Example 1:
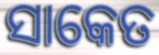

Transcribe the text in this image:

ସାକେତ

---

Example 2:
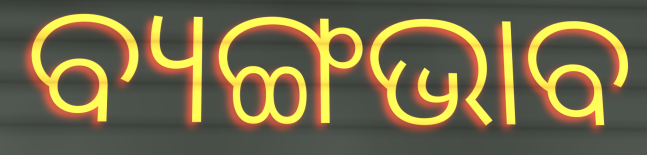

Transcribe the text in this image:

ବ୍ୟଙ୍ଗଭାବ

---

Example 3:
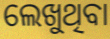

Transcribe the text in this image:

ଲେଖୁଥିବା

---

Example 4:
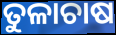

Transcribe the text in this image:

ତୁଳାଚାଷ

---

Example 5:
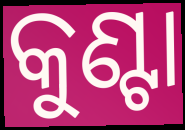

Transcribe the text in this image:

କୁଣ୍ଟା